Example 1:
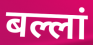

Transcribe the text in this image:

बल्लां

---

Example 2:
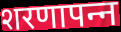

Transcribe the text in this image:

शरणापन्न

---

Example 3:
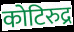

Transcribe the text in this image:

कोटिरुद्र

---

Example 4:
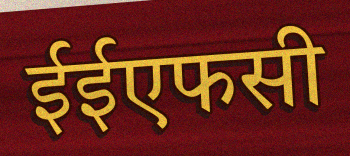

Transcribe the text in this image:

ईईएफसी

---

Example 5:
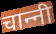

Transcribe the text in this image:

चान्नी